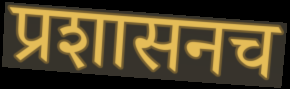
प्रशासनच